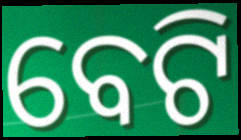
ବେଟି